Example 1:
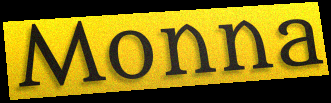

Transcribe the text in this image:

Monna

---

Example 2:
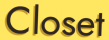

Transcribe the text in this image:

Closet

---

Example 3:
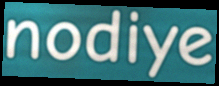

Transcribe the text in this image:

nodiye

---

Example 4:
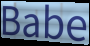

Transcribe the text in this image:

Babe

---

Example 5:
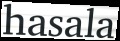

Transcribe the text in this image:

hasala